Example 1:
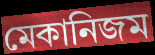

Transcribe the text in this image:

মেকানিজম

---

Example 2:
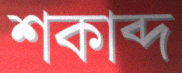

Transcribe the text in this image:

শকাব্দ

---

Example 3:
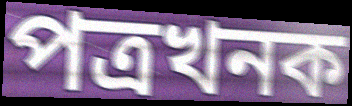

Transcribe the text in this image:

পত্ৰখনক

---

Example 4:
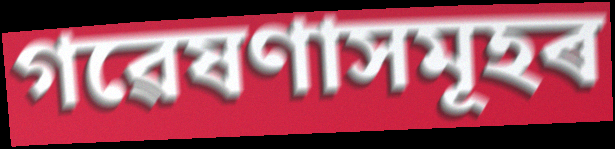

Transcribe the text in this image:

গৱেষণাসমূহৰ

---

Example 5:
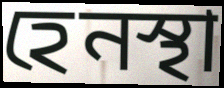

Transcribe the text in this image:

হেনস্থা